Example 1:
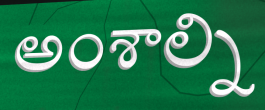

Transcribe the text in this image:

అంశాల్ని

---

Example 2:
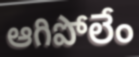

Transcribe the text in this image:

ఆగిపోలేం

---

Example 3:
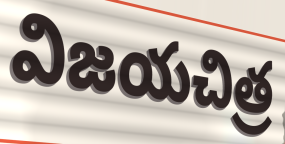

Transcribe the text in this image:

విజయచిత్ర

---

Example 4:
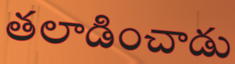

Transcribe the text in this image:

తలాడించాడు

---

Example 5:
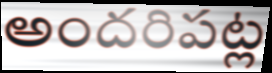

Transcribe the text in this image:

అందరిపట్ల